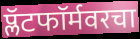
प्लॅटफॉर्मवरचा